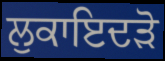
ਲੁਕਾਇਦੜੋ